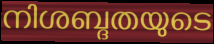
നിശബ്ദതയുടെ